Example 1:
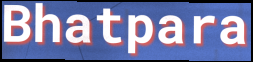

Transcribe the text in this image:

Bhatpara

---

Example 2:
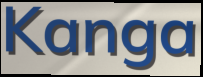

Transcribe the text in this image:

Kanga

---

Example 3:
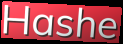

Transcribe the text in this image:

Hashe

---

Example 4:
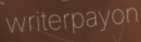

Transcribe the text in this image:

writerpayon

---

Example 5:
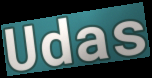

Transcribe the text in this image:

Udas